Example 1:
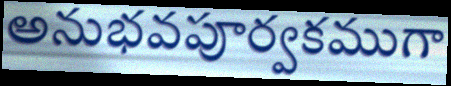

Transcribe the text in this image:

అనుభవపూర్వకముగా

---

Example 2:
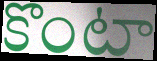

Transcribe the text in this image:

కొంటా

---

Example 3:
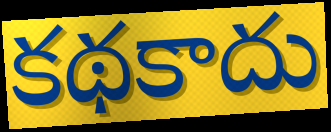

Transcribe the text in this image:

కథకాదు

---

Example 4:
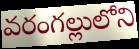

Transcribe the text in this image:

వరంగల్లులోని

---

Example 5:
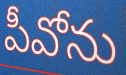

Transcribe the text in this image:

పీవోను